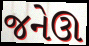
જનેઊ